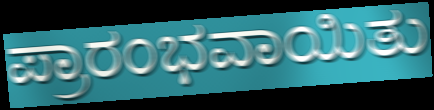
ಪ್ರಾರಂಭವಾಯಿತು